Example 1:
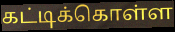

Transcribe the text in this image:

கட்டிக்கொள்ள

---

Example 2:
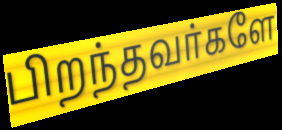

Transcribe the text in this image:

பிறந்தவர்களே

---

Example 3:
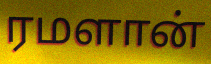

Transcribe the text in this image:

ரமளான்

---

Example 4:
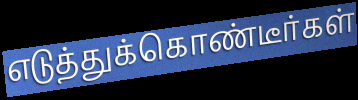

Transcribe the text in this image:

எடுத்துக்கொண்டீர்கள்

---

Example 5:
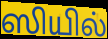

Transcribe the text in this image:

ஸியில்